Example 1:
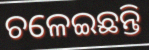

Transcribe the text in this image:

ଚଳେଇଛନ୍ତି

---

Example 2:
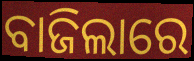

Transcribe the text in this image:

ବାଜିଲାରେ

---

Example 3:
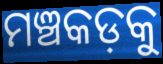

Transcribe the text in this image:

ମଞ୍ଚକଡ଼କୁ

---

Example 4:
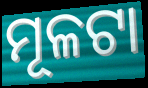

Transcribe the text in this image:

ମୂଳଟା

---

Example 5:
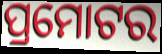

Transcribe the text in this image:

ପ୍ରମୋଟର